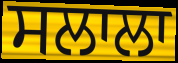
ਸਲਾਲਾ